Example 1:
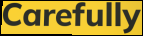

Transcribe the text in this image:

Carefully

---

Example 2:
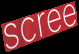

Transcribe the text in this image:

scree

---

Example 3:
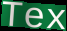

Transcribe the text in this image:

Tex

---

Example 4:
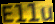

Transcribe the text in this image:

Ellu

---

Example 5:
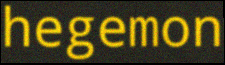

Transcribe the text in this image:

hegemon